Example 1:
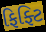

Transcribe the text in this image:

ફિફ્ટિ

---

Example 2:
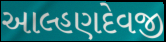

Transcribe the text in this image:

આલ્હણદેવજી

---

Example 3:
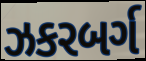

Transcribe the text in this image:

ઝકરબર્ગ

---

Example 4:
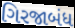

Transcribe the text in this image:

ગિરજાબંધ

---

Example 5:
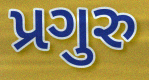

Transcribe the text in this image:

પ્રગુરુ